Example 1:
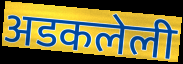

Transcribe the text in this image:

अडकलेली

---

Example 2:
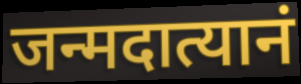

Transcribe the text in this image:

जन्मदात्यानं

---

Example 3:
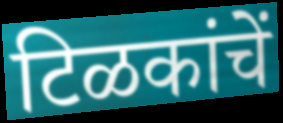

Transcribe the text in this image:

टिळकांचें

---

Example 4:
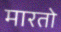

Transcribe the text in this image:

मारतो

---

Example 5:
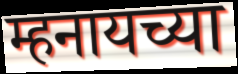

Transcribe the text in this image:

म्हनायच्या